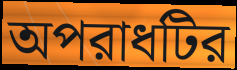
অপরাধটির